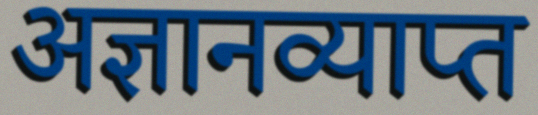
अज्ञानव्याप्त